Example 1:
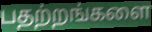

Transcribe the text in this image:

பதற்றங்களை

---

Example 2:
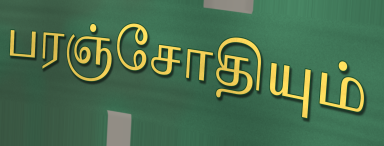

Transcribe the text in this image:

பரஞ்சோதியும்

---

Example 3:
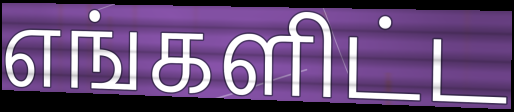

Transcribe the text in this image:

எங்களிட்ட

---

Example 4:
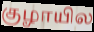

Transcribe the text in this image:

குழாயில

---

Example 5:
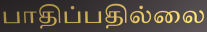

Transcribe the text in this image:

பாதிப்பதில்லை